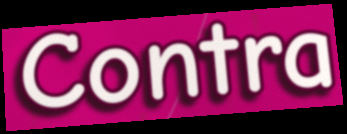
Contra